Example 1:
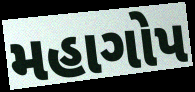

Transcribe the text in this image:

મહાગોપ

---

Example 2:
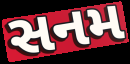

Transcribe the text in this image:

સનમ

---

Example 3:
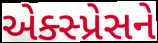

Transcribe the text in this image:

એક્સ્પ્રેસને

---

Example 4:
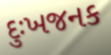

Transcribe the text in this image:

દુઃખજનક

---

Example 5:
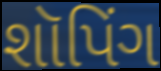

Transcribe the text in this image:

શૉપિંગ